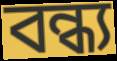
বন্ধ্য